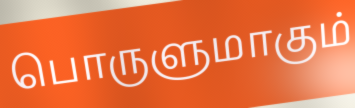
பொருளுமாகும்